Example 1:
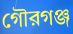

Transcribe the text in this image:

গৌরগঞ্জ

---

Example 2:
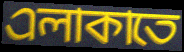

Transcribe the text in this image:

এলাকাতে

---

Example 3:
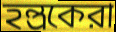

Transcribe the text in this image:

হন্ত্রকেরা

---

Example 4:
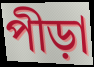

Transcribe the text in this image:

পীড়া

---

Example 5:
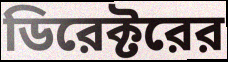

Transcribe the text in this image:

ডিরেক্টরের